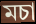
মচা